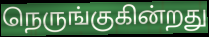
நெருங்குகின்றது